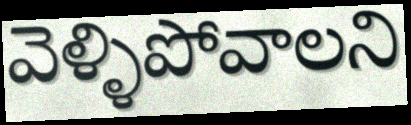
వెళ్ళిపోవాలని